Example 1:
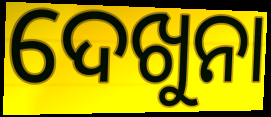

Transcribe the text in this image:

ଦେଖୁନା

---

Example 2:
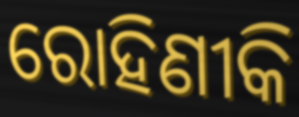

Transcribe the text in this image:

ରୋହିଣୀକି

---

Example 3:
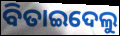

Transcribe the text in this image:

ବିତାଇଦେଲୁ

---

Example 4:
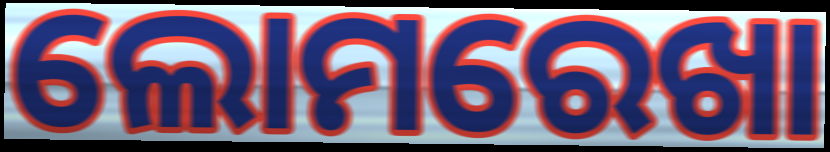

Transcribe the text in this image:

ଲୋମରେଖା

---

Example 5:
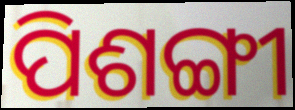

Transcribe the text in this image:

ପିଶଙ୍ଗୀ